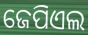
ଜେପିଏଲ